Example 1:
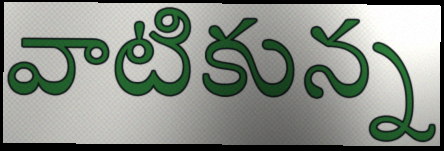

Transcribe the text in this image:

వాటికున్న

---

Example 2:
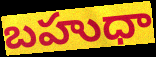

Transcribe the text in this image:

బహుధా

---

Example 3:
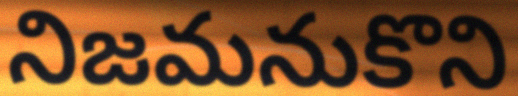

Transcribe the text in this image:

నిజమనుకొని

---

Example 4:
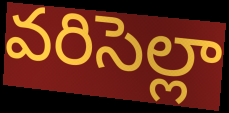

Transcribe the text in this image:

వరిసెల్లా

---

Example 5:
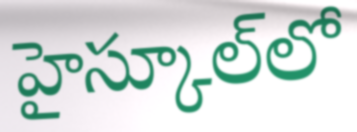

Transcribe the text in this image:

హైస్కూల్‌లో